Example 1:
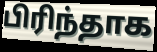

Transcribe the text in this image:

பிரிந்தாக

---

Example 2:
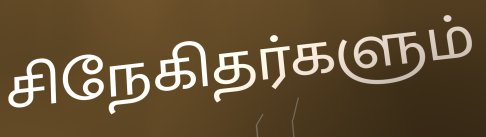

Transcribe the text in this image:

சிநேகிதர்களும்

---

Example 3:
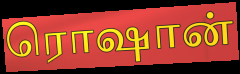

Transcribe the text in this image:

ரொஷான்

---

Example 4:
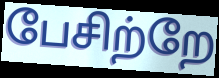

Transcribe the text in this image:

பேசிற்றே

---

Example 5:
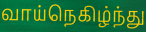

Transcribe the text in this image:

வாய்நெகிழ்ந்து